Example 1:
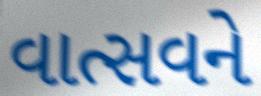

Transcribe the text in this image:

વાત્સવને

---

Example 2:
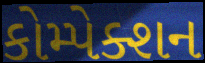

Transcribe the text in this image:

કોમ્પેક્શન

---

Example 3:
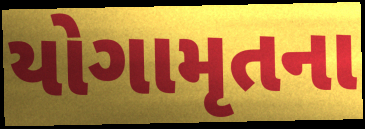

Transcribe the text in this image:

યોગામૃતના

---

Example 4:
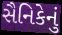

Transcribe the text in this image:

સૈનિકેનું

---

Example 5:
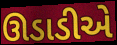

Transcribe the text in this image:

ઊડાડીએ